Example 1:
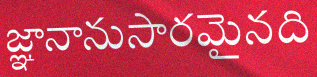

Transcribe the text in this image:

జ్ఞానానుసారమైనది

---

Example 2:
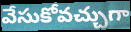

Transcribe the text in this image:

వేసుకోవచ్చుగా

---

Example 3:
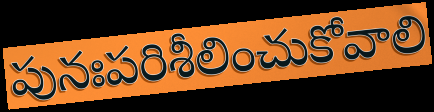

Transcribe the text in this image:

పునఃపరిశీలించుకోవాలి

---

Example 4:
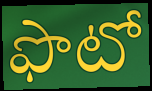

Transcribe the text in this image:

ఫొటో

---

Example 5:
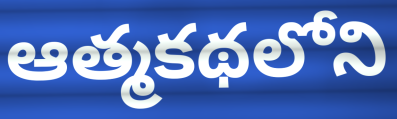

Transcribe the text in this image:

ఆత్మకథలోని